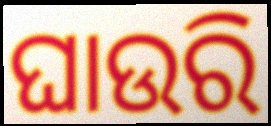
ଘାଉରି